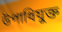
উপাধিযুক্ত